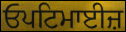
ਓਪਟਿਮਾਈਜ਼